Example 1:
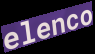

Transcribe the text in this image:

elenco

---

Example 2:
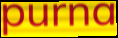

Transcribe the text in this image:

purna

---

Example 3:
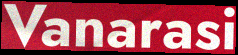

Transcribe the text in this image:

Vanarasi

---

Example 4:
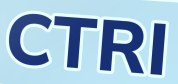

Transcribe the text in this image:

CTRI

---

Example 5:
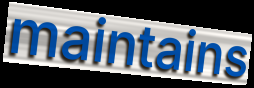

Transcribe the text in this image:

maintains